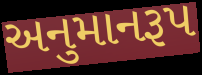
અનુમાનરૂપ